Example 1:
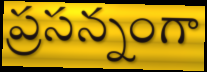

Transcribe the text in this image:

ప్రసన్నంగా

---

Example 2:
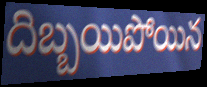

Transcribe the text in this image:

దిబ్బయిపోయిన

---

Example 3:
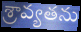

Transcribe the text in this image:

శ్రావ్యతను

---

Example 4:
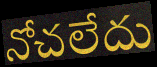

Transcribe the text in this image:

నోచలేదు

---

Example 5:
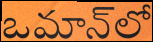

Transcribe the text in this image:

ఒమాన్‌లో